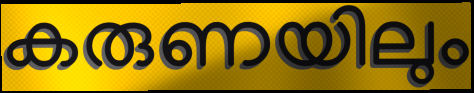
കരുണയിലും